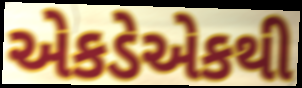
એકડેએકથી